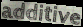
additive